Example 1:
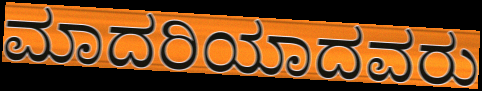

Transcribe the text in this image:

ಮಾದರಿಯಾದವರು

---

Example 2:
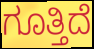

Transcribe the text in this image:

ಗೂತ್ತಿದೆ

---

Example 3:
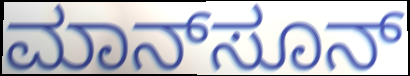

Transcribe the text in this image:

ಮಾನ್‌ಸೂನ್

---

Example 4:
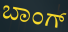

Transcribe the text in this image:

ಬಾಂಗ್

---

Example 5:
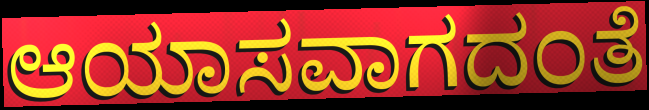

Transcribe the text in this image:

ಆಯಾಸವಾಗದಂತೆ